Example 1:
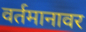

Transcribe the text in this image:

वर्तमानावर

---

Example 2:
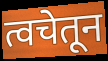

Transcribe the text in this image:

त्वचेतून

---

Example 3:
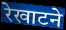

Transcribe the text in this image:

रेखाटने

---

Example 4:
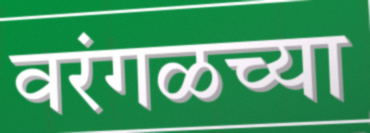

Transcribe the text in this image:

वरंगळच्या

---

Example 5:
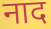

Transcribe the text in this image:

नाद